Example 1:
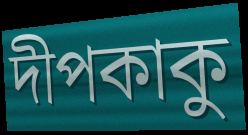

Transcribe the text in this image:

দীপকাকু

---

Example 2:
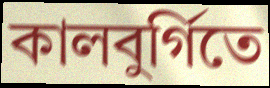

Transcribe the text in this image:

কালবুর্গিতে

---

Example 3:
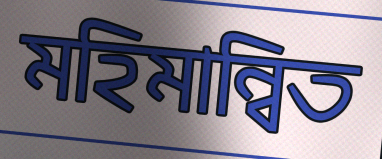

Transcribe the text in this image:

মহিমান্বিত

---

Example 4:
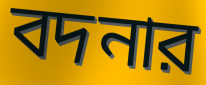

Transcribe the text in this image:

বদনার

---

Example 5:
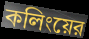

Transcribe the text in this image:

কলিংয়ের